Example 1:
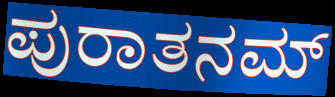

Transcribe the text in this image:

ಪುರಾತನಮ್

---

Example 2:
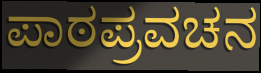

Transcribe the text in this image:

ಪಾಠಪ್ರವಚನ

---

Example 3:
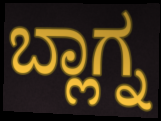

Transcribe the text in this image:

ಬ್ಲಾಗ್ನ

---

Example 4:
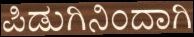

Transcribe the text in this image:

ಪಿಡುಗಿನಿಂದಾಗಿ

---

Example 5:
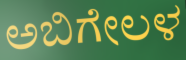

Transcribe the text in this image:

ಅಬಿಗೇಲಳ